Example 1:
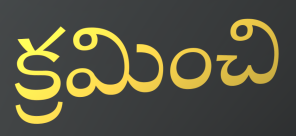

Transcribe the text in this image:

క్రమించి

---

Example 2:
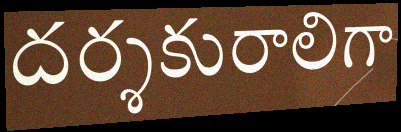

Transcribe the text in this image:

దర్శకురాలిగా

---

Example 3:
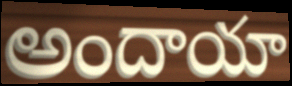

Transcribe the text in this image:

అందాయా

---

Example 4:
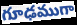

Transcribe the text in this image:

గూఢముగా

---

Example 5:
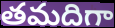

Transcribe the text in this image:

తమదిగా